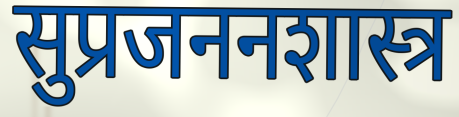
सुप्रजननशास्त्र